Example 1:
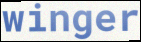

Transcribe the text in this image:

winger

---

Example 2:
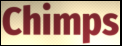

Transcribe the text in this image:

Chimps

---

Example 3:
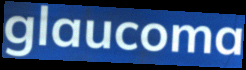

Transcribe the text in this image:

glaucoma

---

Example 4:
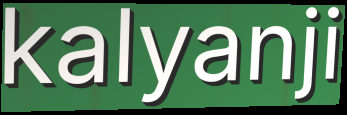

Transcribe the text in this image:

kalyanji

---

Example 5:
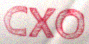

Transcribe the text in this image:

CXO